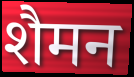
शैमन